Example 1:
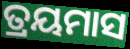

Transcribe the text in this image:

ତ୍ରୟମାସ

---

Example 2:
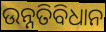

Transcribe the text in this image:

ଉନ୍ନତିବିଧାନ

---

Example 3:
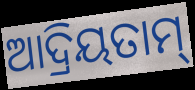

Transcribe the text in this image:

ଆଦ୍ରିୟତାମ୍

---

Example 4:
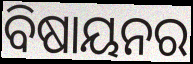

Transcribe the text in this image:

ବିଷାୟନର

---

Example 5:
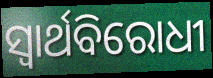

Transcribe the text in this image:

ସ୍ବାର୍ଥବିରୋଧୀ